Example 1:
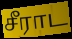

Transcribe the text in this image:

சீராட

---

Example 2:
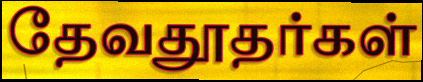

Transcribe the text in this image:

தேவதூதர்கள்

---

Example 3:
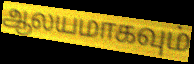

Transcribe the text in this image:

ஆலயமாகவும்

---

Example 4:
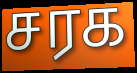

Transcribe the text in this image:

சரக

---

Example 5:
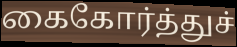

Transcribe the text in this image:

கைகோர்த்துச்